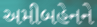
અમીબહેનને